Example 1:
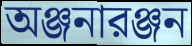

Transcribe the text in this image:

অঞ্জনারঞ্জন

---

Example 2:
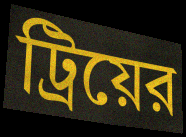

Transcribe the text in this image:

ট্রিয়ের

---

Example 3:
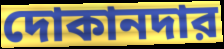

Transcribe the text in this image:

দোকানদার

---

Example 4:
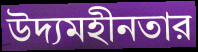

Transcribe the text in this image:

উদ্যমহীনতার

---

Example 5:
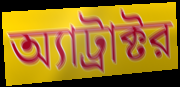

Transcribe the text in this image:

অ্যাট্রাক্টর